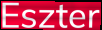
Eszter